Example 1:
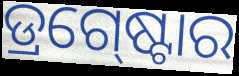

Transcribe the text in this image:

ଡ୍ରଗ୍‍ଷ୍ଟୋର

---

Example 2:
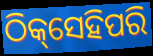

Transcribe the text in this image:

ଠିକ୍‌ସେହିପରି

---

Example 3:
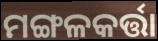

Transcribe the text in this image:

ମଙ୍ଗଳକର୍ତ୍ତା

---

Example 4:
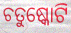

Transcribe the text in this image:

ଚତୁଷ୍କୋଟି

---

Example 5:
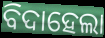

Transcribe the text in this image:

ବିଦାହେଲା